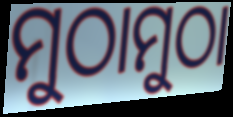
ମୁଠାମୁଠା